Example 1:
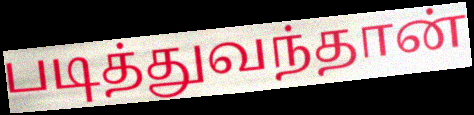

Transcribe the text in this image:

படித்துவந்தான்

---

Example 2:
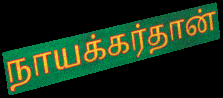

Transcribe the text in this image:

நாயக்கர்தான்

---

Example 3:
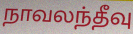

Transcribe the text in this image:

நாவலந்தீவு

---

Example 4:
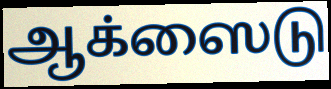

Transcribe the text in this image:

ஆக்ஸைடு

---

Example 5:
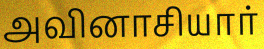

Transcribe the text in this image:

அவினாசியார்